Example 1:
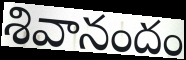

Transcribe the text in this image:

శివానందం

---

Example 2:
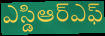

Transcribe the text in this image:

ఎస్డిఆర్ఎఫ్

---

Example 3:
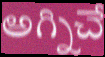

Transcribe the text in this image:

అగ్నిచే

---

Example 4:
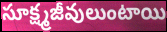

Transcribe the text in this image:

సూక్ష్మజీవులుంటాయి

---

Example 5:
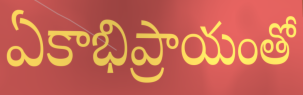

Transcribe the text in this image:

ఏకాభిప్రాయంతో